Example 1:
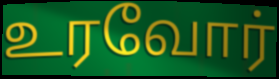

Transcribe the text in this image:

உரவோர்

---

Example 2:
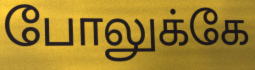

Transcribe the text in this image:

போலுக்கே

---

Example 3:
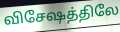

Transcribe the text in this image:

விசேஷத்திலே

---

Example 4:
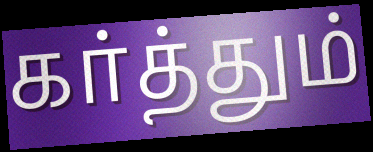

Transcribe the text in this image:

கர்த்தும்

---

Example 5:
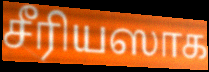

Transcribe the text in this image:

சீரியஸாக